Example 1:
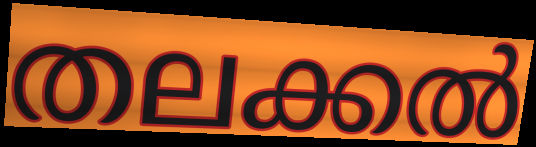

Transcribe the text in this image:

തലക്കൽ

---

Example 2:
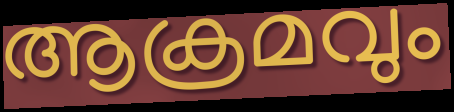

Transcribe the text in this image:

ആക്രമവും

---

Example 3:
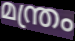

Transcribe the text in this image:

മന്ത്രം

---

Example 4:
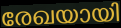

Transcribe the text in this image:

രേഖയായി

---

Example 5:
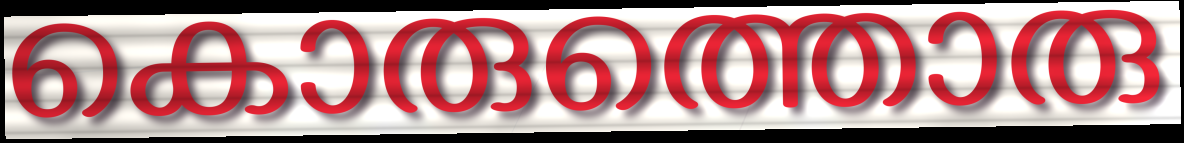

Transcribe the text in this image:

കൊരുത്തൊരു